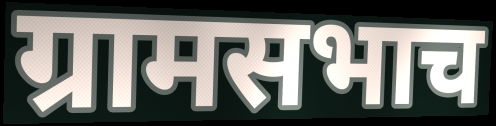
ग्रामसभाच